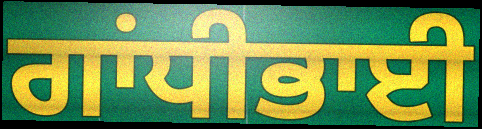
ਗਾਂਧੀਭਾਈ